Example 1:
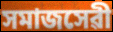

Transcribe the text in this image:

সমাজসেৱী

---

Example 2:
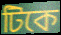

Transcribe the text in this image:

টিকে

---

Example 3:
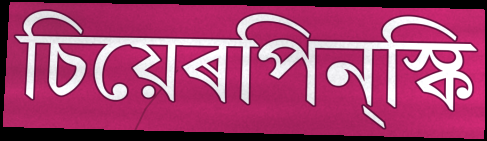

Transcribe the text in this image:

চিয়েৰপিন্‌স্কি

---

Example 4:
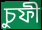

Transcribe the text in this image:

চুফী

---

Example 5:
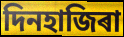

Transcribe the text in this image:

দিনহাজিৰা